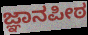
ಜ್ಞಾನಪೀಠ